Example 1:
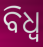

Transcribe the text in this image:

ବିଧ୍ଵ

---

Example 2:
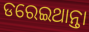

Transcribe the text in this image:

ଡରେଇଥାନ୍ତା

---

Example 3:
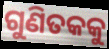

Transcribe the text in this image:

ଗୁଣିତକକୁ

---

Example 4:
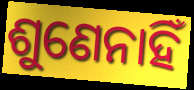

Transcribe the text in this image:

ଶୁଣେନାହିଁ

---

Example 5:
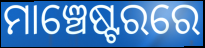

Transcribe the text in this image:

ମାଞ୍ଚେଷ୍ଟରରେ